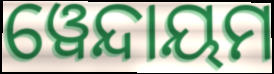
ୱେନ୍ଦାୟମ